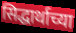
सिद्धार्थाच्या